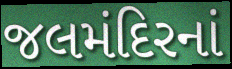
જલમંદિરનાં